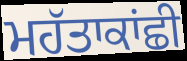
ਮਹੱਤਾਕਾਂਛੀ